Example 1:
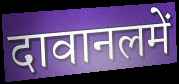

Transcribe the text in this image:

दावानलमें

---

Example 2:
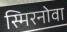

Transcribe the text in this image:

स्मिरनोवा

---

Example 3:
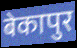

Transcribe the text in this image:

बेकापुर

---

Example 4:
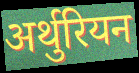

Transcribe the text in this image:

अर्थुरियन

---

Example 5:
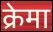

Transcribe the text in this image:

क्रेमा